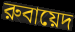
রুবায়েদ